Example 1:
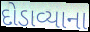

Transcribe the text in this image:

દોડાવ્યાના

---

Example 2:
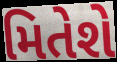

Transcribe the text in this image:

મિતેશે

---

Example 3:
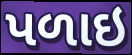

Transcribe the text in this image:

પળાઇ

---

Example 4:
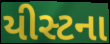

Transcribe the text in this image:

યીસ્ટના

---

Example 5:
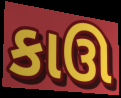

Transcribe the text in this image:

કાઊ